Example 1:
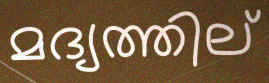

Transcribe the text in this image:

മദ്യത്തില്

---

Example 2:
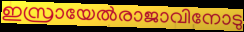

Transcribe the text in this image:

ഇസ്രായേൽരാജാവിനോടു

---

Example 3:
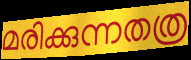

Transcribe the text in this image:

മരിക്കുന്നതത്ര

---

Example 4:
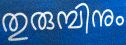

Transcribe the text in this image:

തുരുമ്പിനും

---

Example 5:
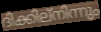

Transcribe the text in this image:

ദിക്കില്നിന്നും